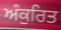
ਅੰਕੁਰਿਤ